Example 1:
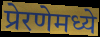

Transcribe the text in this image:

प्रेरणेमध्ये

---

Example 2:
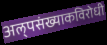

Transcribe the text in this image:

अल्पसंख्याकविरोधी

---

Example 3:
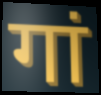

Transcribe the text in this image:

गां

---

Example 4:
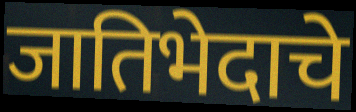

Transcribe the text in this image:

जातिभेदाचे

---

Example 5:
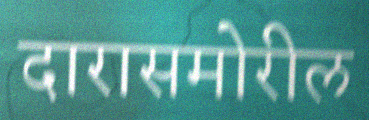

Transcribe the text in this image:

दारासमोरील